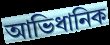
আভিধানিক